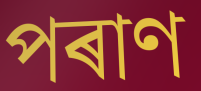
পৰাণ